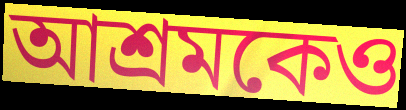
আশ্রমকেও